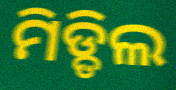
ମିଡ୍ଡିଲ